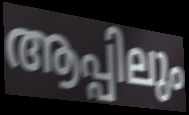
ആപ്പിലും